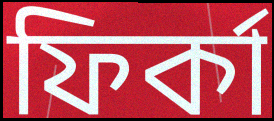
ফির্কা